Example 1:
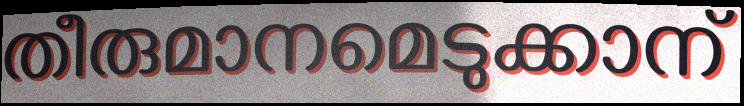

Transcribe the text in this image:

തീരുമാനമെടുക്കാന്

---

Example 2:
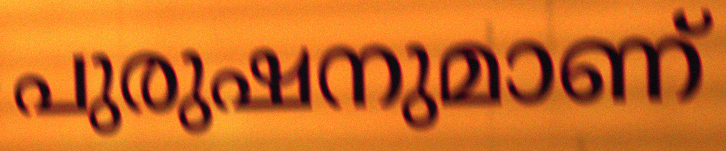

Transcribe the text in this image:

പുരുഷനുമാണ്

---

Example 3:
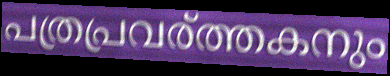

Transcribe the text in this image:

പത്രപ്രവര്ത്തകനും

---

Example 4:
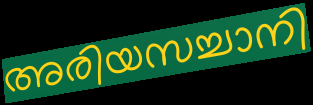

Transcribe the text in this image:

അരിയസച്ചാനി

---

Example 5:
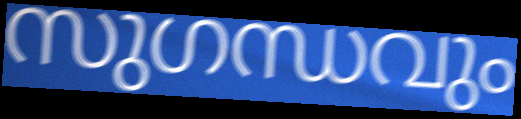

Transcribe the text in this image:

സുഗന്ധവും